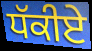
ਧੱਕੀਏ